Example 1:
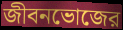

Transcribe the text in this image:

জীবনভোজের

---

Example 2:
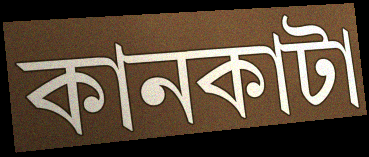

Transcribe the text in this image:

কানকাটা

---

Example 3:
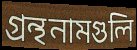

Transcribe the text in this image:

গ্রন্থনামগুলি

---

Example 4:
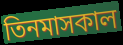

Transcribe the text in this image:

তিনমাসকাল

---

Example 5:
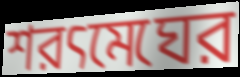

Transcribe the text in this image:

শরৎমেঘের